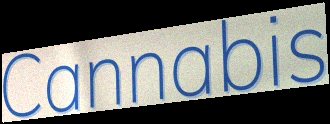
Cannabis